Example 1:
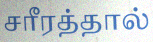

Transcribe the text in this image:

சரீரத்தால்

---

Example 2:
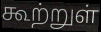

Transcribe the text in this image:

கூற்றுள்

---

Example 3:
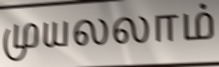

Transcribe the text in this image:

முயலலாம்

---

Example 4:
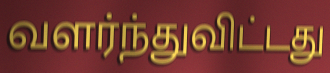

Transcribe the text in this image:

வளர்ந்துவிட்டது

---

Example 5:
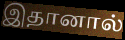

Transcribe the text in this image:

இதானால்